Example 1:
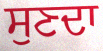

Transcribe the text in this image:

ਸੁਣਦਾ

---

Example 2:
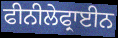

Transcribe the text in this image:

ਫੀਨੀਲੇਫ੍ਰਾਈਨ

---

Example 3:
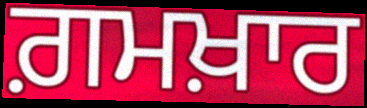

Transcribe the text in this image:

ਗ਼ਮਖ਼ਾਰ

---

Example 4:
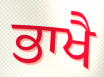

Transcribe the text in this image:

ਭਾਖੈ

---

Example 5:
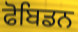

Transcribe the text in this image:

ਫੋਬਿਡਨ